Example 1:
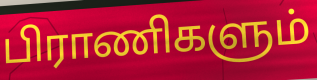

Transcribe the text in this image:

பிராணிகளும்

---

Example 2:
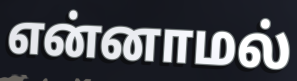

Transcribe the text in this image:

என்னாமல்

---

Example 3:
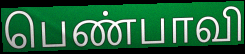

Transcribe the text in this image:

பெண்பாவி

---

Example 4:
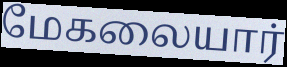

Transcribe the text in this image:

மேகலையார்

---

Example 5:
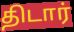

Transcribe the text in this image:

திடார்